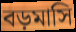
বড়মাসি